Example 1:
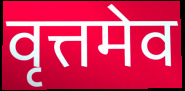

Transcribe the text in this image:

वृत्तमेव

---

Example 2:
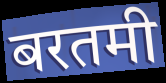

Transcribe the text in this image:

बरतमी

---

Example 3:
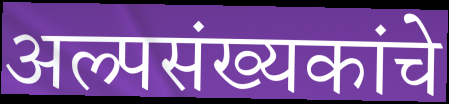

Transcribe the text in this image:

अल्पसंख्यकांचे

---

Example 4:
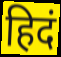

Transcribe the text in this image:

हिदं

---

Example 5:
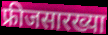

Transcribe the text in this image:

फ्रीजसारख्या